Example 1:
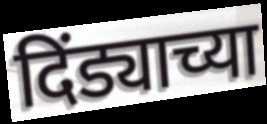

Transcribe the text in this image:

दिंड्याच्या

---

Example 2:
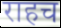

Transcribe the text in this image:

राहच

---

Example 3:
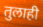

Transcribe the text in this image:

तुलाही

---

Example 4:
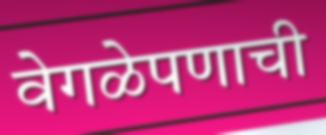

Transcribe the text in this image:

वेगळेपणाची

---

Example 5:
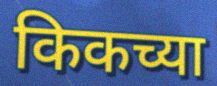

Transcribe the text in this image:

किकच्या